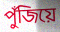
পুঁজিয়ে